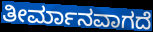
ತೀರ್ಮಾನವಾಗದೆ